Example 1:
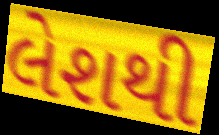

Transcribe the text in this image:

લેશથી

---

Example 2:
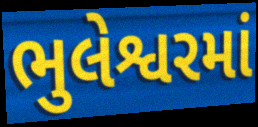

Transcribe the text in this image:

ભુલેશ્વરમાં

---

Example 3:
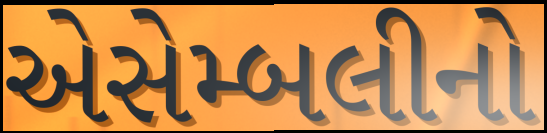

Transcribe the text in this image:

એસેમ્બલીનો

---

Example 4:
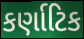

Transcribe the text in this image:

કર્ણાટિક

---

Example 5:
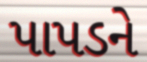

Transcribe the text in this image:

પાપડને